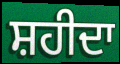
ਸ਼ਹੀਦਾ